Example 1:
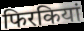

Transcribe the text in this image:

फिरकियां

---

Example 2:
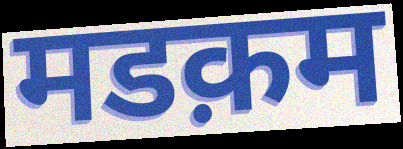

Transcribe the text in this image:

मडक़म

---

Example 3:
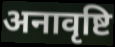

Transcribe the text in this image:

अनावृष्टि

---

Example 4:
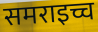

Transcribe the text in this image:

समराइच्च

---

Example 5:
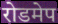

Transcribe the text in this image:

रोडमेप